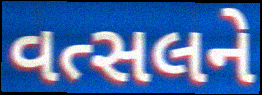
વત્સલને